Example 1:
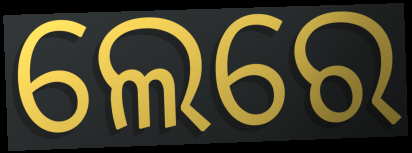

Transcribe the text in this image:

ଲେରେ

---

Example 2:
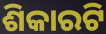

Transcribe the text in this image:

ଶିକାରଟି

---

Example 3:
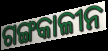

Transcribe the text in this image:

ଗଙ୍ଗକାଳୀନ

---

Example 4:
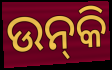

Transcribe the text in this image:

ଉନ୍‌କି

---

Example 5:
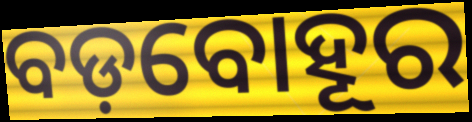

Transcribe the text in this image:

ବଡ଼ବୋହୂର